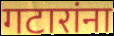
गटारांना